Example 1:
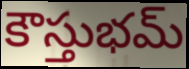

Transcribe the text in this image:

కౌస్తుభమ్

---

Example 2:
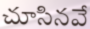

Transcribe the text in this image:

చూసినవే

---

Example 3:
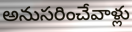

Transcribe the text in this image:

అనుసరించేవాళ్లు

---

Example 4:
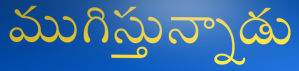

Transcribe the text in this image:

ముగిస్తున్నాడు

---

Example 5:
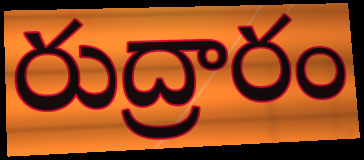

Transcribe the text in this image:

రుద్రారం